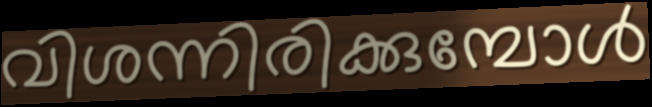
വിശന്നിരിക്കുമ്പോൾ